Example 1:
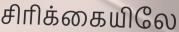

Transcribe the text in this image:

சிரிக்கையிலே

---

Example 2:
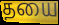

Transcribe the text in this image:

தயை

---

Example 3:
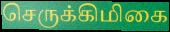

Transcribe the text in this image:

செருக்கிமிகை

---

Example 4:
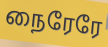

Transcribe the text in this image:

நைரேரே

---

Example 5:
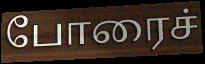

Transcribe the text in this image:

போரைச்